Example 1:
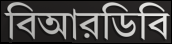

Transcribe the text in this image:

বিআরডিবি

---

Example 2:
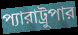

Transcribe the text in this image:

প্যারাট্রুপার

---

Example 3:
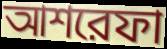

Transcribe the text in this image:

আশরেফা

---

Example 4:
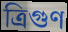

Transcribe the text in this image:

ত্রিগুণ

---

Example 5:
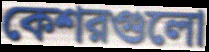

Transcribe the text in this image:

কেশরগুলো